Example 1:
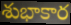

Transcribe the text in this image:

శుభాకార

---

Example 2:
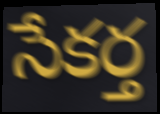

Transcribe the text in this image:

సేకర్త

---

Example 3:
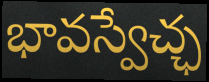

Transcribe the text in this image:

భావస్వేచ్ఛ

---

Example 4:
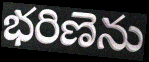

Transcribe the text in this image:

భరిణెను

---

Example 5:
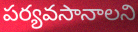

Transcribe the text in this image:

పర్యవసానాలని